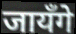
जायँगे